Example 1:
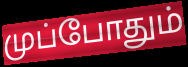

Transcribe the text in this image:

முப்போதும்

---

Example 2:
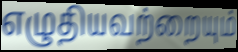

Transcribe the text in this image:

எழுதியவற்றையும்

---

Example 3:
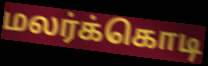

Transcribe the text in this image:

மலர்க்கொடி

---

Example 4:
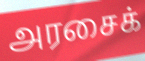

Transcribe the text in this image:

அரசைக்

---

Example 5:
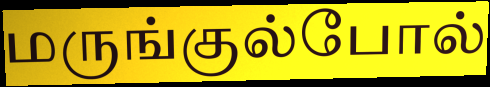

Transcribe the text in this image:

மருங்குல்போல்